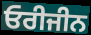
ਓਰੀਜੀਨ